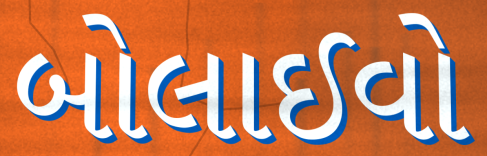
બોલાઈવો